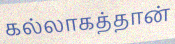
கல்லாகத்தான்